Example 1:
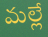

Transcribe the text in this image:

మల్లే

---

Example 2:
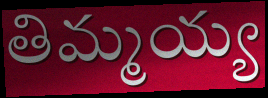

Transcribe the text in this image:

తిమ్మయ్య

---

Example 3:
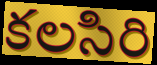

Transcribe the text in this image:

కలసిరి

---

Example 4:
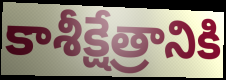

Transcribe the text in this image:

కాశీక్షేత్రానికి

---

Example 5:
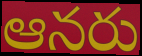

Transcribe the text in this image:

ఆనరు